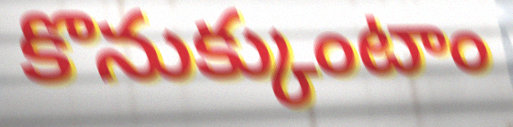
కొనుక్కుంటాం